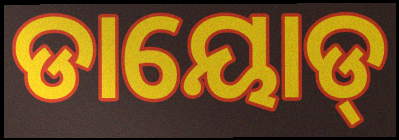
ଡାୟୋଡ୍